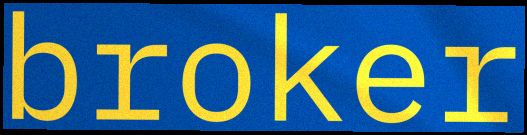
broker